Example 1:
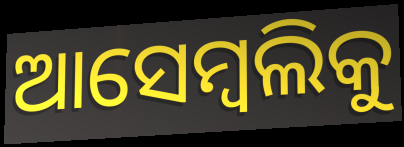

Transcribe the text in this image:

ଆସେମ୍ବଲିକୁ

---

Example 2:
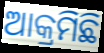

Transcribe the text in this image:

ଆକ୍ରମିଛି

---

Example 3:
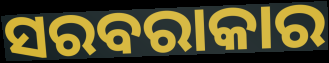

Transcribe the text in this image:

ସରବରାକାର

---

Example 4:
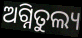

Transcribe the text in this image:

ଅଗ୍ନିତୁଲ୍ୟ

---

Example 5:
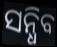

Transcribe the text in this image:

ସନ୍ଧିବ